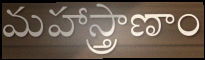
మహాస్త్రాణాం